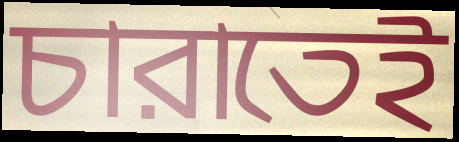
চারাতেই